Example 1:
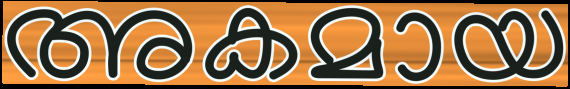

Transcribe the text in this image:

അകമായ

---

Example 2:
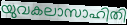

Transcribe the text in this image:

യുവകലാസാഹിതി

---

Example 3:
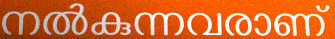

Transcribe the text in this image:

നൽകുന്നവരാണ്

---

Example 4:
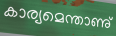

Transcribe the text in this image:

കാര്യമെന്താണു്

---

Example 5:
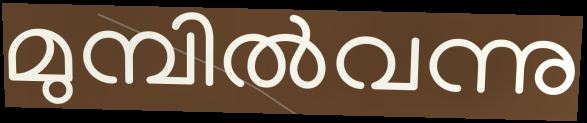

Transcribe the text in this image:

മുമ്പിൽവന്നു